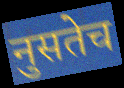
नुसतेच